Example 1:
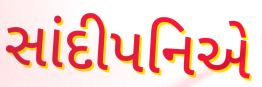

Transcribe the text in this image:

સાંદીપનિએ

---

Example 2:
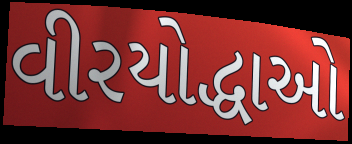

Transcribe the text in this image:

વીરયોદ્ધાઓ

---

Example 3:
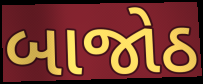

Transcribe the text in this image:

બાજોઠ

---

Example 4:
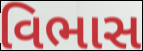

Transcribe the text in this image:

વિભાસ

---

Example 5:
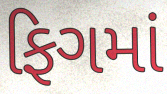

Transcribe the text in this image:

ફિગમાં